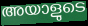
അയാളുടെ